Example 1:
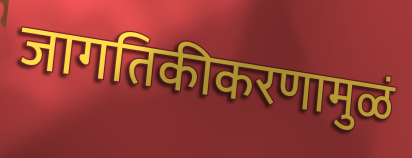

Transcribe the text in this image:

जागतिकीकरणामुळं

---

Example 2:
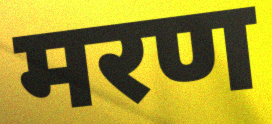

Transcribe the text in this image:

मरण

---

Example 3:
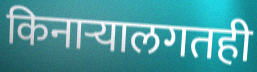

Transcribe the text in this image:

किनाऱ्यालगतही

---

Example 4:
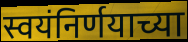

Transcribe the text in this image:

स्वयंनिर्णयाच्या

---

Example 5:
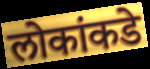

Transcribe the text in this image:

लोकांकडे